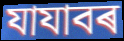
যাযাবৰ